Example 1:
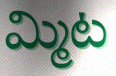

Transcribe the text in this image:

మ్మిట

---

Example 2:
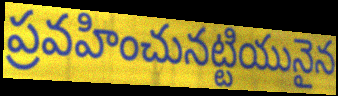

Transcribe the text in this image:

ప్రవహించునట్టియునైన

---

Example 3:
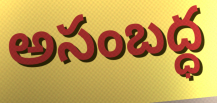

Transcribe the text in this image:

అసంబద్ధ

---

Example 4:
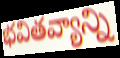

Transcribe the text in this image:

భవితవ్యాన్ని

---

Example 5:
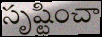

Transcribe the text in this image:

సృష్టించా